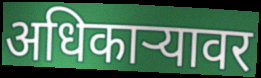
अधिकाऱ्यावर